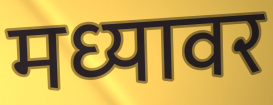
मध्यावर